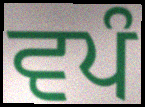
ਵਪੰ